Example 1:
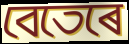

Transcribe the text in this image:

বেতেৰে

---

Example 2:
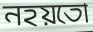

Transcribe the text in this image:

নহয়তো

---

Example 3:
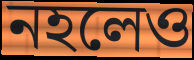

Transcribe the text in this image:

নহলেও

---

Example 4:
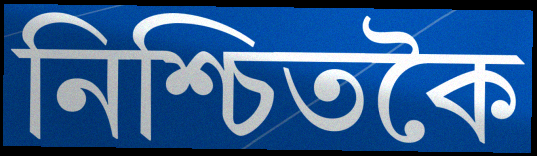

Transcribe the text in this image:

নিশ্চিতকৈ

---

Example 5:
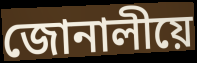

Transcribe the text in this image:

জোনালীয়ে